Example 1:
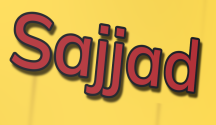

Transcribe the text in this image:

Sajjad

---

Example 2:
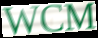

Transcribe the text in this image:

WCM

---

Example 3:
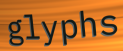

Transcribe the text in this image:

glyphs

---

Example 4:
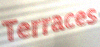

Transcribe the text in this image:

Terraces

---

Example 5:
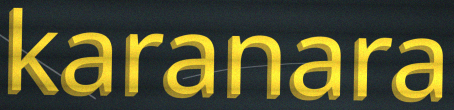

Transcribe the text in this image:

karanara